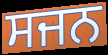
ਸਜਨ